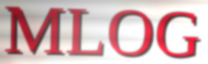
MLOG